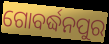
ଗୋବର୍ଦ୍ଧନପୁର